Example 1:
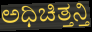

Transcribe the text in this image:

ಅಧಿಚಿತ್ತನ್ತಿ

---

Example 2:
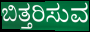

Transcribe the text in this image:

ಬಿತ್ತರಿಸುವ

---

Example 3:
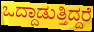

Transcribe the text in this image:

ಒದ್ದಾಡುತ್ತಿದ್ದರೆ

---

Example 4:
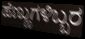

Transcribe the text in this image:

ಹೆಣ್ಣುಗಳಿಬ್ಬರ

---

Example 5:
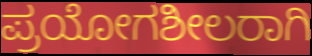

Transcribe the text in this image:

ಪ್ರಯೋಗಶೀಲರಾಗಿ